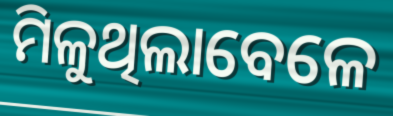
ମିଳୁଥିଲାବେଳେ